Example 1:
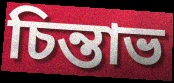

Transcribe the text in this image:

চিন্তাভ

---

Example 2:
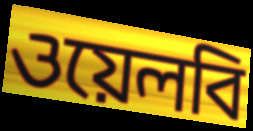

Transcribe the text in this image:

ওয়েলবি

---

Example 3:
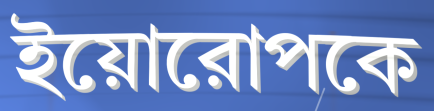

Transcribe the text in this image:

ইয়োরোপকে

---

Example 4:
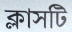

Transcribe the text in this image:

ক্লাসটি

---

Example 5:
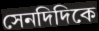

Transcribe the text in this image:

সেনদিদিকে